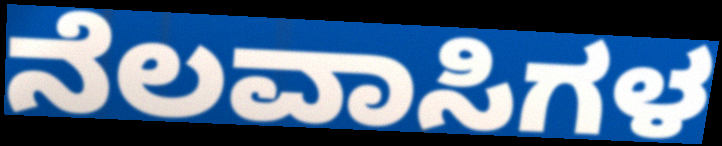
ನೆಲವಾಸಿಗಳ